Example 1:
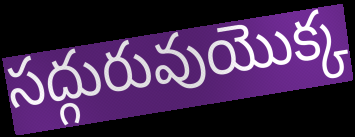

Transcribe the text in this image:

సద్గురువుయొక్క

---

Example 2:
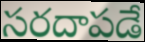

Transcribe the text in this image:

సరదాపడే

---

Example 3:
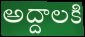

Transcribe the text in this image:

అద్దాలకి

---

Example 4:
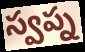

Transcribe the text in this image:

స్వప్న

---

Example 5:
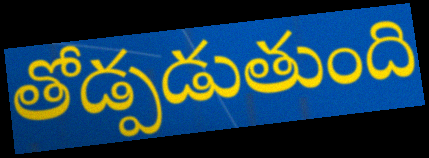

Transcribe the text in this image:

తోడ్పడుతుంది